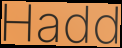
Hadd